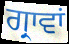
ਗ੍ਰਾਵਾਂ